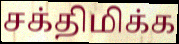
சக்திமிக்க